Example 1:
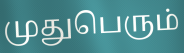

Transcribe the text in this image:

முதுபெரும்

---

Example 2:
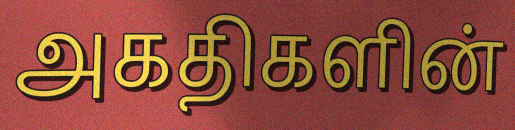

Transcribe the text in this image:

அகதிகளின்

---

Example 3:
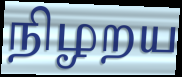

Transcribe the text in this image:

நிழறய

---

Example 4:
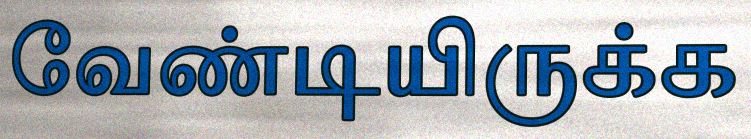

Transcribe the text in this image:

வேண்டியிருக்க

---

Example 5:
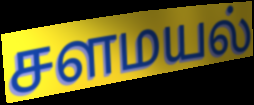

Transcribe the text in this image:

சளமயல்